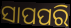
ସାପପରି